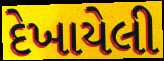
દેખાયેલી